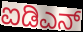
ಐಡಿಎನ್